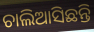
ଚାଲିଆସିଛନ୍ତି